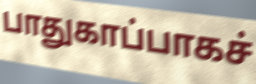
பாதுகாப்பாகச்